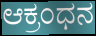
ಆಕ್ರಂಧನ